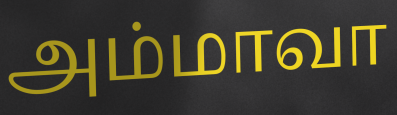
அம்மாவா